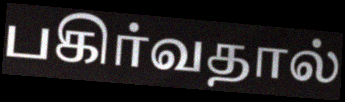
பகிர்வதால்